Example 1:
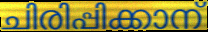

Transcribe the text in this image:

ചിരിപ്പിക്കാന്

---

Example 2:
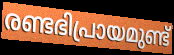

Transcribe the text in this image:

രണ്ടഭിപ്രായമുണ്ട്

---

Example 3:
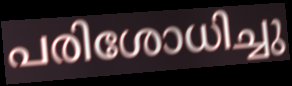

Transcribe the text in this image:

പരിശോധിച്ചു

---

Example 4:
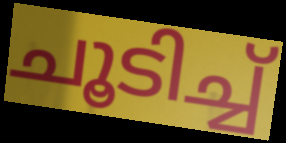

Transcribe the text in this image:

ചൂടിച്ച്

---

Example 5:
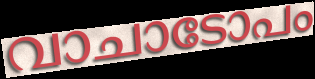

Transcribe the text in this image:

വാചാടോപം